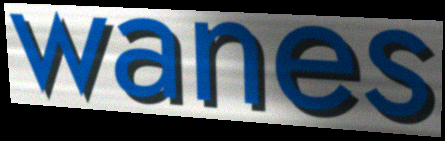
wanes